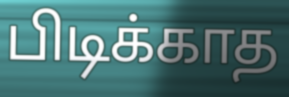
பிடிக்காத